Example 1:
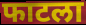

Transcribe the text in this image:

फाटला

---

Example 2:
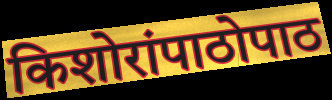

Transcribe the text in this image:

किशोरांपाठोपाठ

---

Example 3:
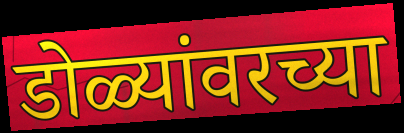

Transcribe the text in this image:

डोळ्यांवरच्या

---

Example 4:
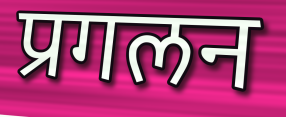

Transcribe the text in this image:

प्रगलन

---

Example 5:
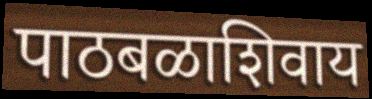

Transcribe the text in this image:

पाठबळाशिवाय